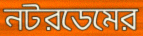
নটরডেমের